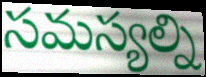
సమస్యల్ని